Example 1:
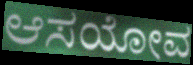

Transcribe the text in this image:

ಆಸಯೋವ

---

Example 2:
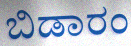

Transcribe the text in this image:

ಬಿಡಾರಂ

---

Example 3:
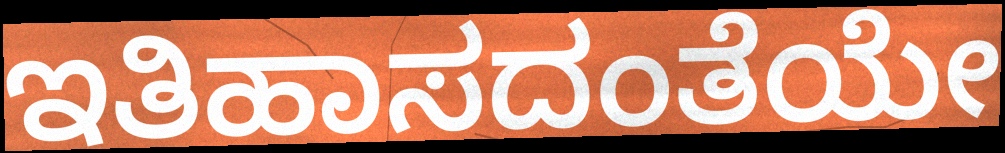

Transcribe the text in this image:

ಇತಿಹಾಸದಂತೆಯೇ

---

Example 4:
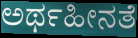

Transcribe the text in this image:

ಅರ್ಥಹೀನತೆ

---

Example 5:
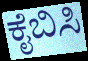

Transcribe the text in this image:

ಕೈಬಿಸಿ